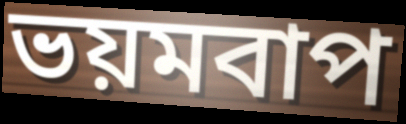
ভয়মবাপ